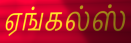
ஏங்கல்ஸ்